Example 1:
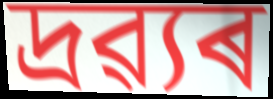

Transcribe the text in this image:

দ্ৰৱ্যৰ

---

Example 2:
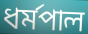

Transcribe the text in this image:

ধৰ্মপাল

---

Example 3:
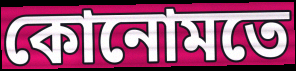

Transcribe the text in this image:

কোনোমতে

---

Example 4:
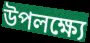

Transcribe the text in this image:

উপলক্ষ্যে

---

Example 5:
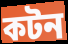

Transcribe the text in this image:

কটন